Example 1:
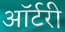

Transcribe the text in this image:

ऑर्टरी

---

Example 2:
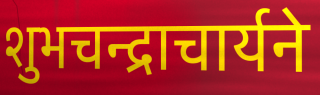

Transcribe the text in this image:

शुभचन्द्राचार्यने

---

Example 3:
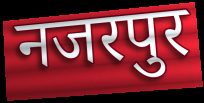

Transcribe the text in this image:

नजरपुर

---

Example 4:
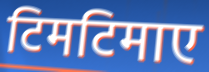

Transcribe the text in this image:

टिमटिमाए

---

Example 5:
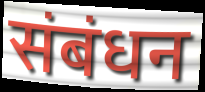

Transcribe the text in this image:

संबंधन